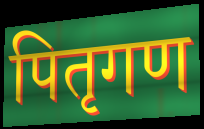
पितृगण